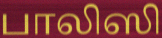
பாலிஸி